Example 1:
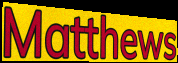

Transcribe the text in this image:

Matthews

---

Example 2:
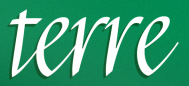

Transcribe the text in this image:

terre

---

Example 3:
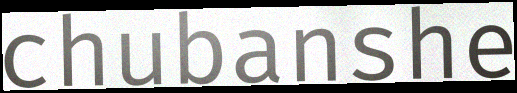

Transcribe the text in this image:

chubanshe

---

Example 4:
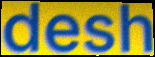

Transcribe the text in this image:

desh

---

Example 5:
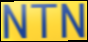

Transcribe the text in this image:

NTN